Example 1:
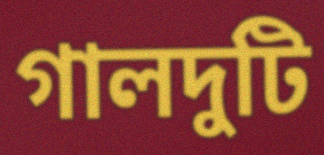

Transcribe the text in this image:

গালদুটি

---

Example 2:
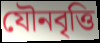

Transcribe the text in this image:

যৌনবৃত্তি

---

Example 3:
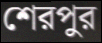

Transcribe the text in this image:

শেরপুর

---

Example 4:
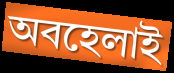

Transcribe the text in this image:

অবহেলাই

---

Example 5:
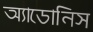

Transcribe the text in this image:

অ্যাডোনিস